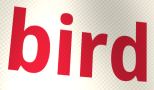
bird